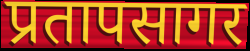
प्रतापसागर